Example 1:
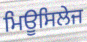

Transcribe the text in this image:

ਮਿਊਸਿਲੇਜ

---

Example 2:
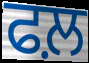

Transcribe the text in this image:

ਫਲ਼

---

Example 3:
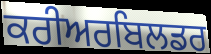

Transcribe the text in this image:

ਕਰੀਅਰਬਿਲਡਰ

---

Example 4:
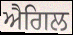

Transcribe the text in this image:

ਐਗਿਲ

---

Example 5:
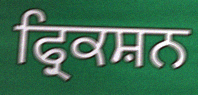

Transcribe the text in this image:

ਫ੍ਰਿਕਸ਼ਨ